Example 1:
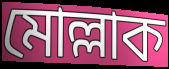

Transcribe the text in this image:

মোল্লাক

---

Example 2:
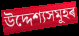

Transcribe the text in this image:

উদ্দেশ্যসমূহৰ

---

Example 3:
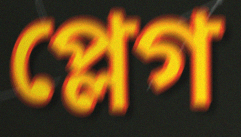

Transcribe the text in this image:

প্লেগ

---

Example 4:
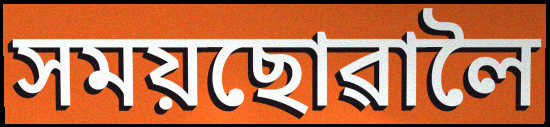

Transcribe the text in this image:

সময়ছোৱালৈ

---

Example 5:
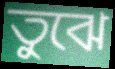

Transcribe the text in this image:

তুঝে